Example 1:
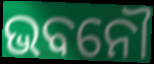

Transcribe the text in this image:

ଭବନୌ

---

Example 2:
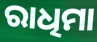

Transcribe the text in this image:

ରାଧିମା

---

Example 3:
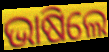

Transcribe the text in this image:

ଭାଷିଲେ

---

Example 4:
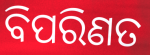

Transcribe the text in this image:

ବିପରିଣତ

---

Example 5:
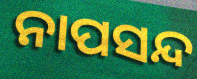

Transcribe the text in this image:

ନାପସନ୍ଦ